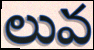
లువ